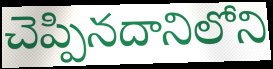
చెప్పినదానిలోని